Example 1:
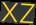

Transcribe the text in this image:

XZ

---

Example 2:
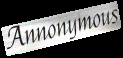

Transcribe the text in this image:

Annonymous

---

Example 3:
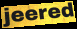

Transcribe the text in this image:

jeered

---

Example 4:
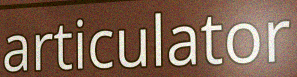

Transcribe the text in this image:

articulator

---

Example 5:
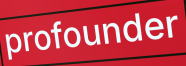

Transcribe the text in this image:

profounder